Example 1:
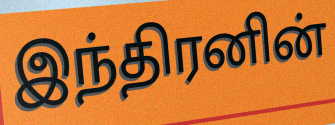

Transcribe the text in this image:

இந்திரனின்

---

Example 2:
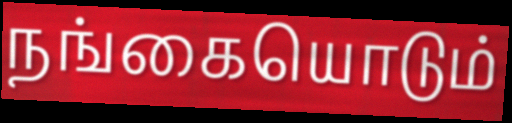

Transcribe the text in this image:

நங்கையொடும்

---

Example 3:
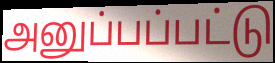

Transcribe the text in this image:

அனுப்பப்பட்டு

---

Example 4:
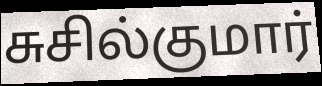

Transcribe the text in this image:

சுசில்குமார்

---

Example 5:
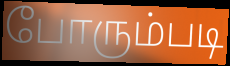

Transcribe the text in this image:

போரும்படி